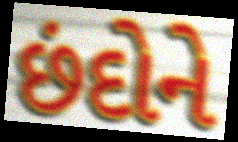
છંદોને